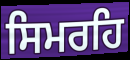
ਸਿਮਰਹਿ